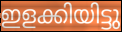
ഇളക്കിയിട്ടു